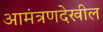
आमंत्रणदेखील